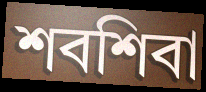
শবশিবা